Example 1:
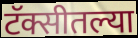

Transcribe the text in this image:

टॅक्सीतल्या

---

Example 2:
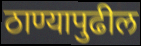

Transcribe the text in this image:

ठाण्यापुढील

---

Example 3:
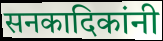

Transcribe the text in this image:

सनकादिकांनी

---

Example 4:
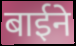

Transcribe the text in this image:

बाईने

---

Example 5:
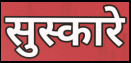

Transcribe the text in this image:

सुस्कारे